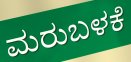
ಮರುಬಳಕೆ